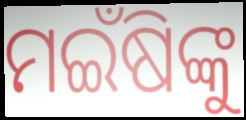
ମଇଁଷିଙ୍କୁ